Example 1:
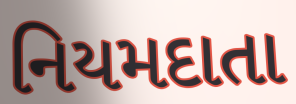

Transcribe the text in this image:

નિયમદાતા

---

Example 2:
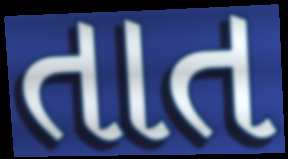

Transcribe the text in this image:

તાત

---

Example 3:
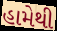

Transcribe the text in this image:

હામેથી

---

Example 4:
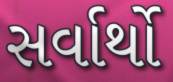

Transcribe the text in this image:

સર્વાર્થો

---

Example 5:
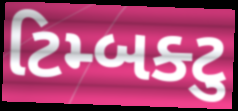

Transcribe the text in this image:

ટિમ્બક્ટુ